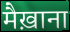
मैख़ाना